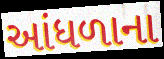
આંધળાના